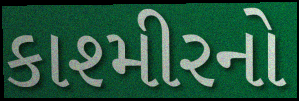
કાશ્મીરનો